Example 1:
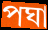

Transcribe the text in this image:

পঘা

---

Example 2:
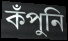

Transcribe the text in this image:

কঁপুনি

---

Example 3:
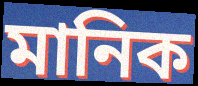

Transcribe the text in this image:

মানিক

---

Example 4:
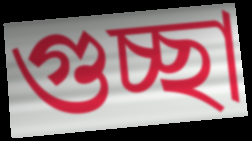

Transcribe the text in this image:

গুচ্ছা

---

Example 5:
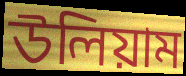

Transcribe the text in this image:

উলিয়াম